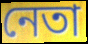
নেতা